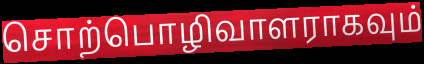
சொற்பொழிவாளராகவும்